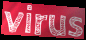
virus